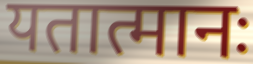
यतात्मानः